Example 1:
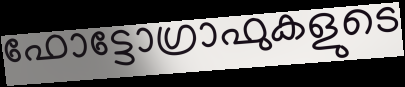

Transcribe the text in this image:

ഫോട്ടോഗ്രാഫുകളുടെ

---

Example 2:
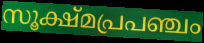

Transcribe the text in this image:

സൂക്ഷ്മപ്രപഞ്ചം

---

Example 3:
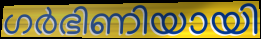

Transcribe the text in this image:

ഗർഭിണിയായി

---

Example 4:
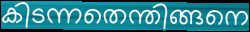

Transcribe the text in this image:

കിടന്നതെന്തിങ്ങനെ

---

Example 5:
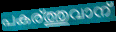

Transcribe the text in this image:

പകര്ത്തുവാന്